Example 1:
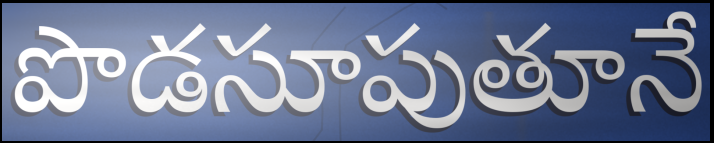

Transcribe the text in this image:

పొడసూపుతూనే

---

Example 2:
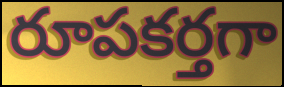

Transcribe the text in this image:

రూపకర్తగా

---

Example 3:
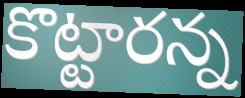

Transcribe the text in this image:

కొట్టారన్న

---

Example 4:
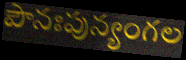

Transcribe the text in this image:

పౌనఃపున్యంగల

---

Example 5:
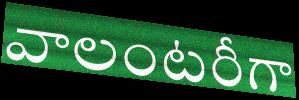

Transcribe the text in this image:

వాలంటరీగా